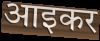
आइकर